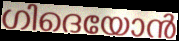
ഗിദെയോൻ